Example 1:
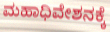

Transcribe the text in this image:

ಮಹಾಧಿವೇಶನಕ್ಕೆ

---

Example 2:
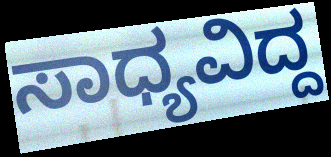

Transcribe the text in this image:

ಸಾಧ್ಯವಿದ್ದ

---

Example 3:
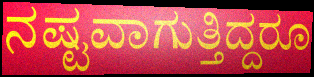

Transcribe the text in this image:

ನಷ್ಟವಾಗುತ್ತಿದ್ದರೂ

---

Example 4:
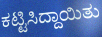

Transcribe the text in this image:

ಕಟ್ಟಿಸಿದ್ದಾಯಿತು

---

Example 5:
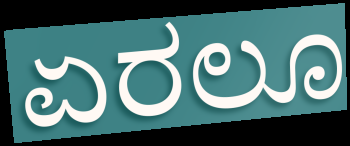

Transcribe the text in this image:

ಏರಲೂ